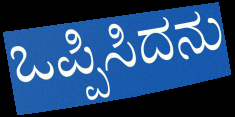
ಒಪ್ಪಿಸಿದನು